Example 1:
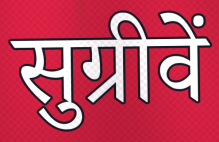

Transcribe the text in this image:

सुग्रीवें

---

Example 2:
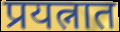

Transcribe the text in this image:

प्रयत्नात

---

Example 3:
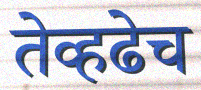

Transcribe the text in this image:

तेव्हढेच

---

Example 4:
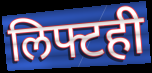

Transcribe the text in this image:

लिफ्टही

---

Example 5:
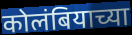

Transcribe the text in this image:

कोलंबियाच्या